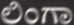
ಲಿಂಗಾ